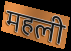
महली